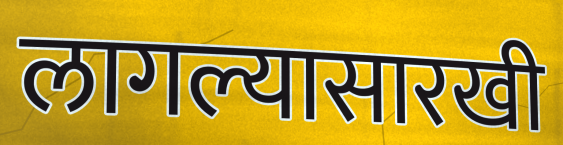
लागल्यासारखी